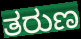
ತರುಣ